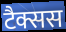
टैक्सस